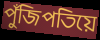
পুঁজিপতিয়ে